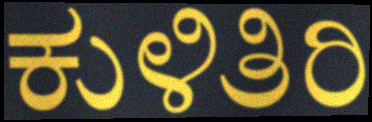
ಕುಳಿತಿರಿ